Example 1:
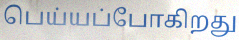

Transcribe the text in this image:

பெய்யப்போகிறது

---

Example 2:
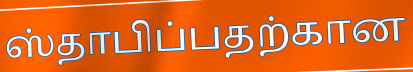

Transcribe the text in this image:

ஸ்தாபிப்பதற்கான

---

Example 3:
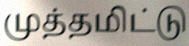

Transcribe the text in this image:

முத்தமிட்டு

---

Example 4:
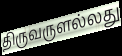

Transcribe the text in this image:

திருவருளல்லது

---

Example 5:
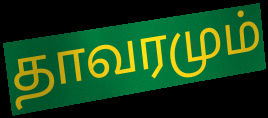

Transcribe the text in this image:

தாவரமும்